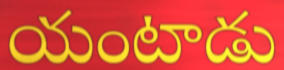
యంటాడు